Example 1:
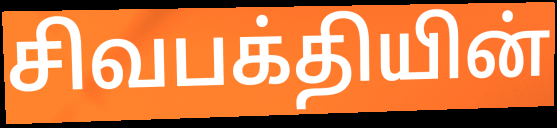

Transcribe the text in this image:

சிவபக்தியின்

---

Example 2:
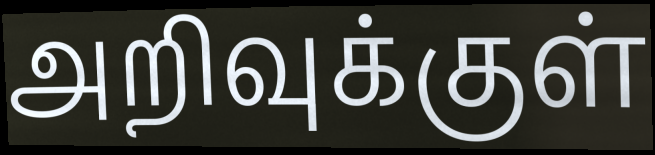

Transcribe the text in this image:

அறிவுக்குள்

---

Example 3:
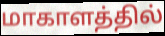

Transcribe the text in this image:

மாகாளத்தில்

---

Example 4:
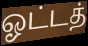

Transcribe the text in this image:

ஓட்டத்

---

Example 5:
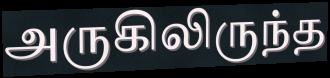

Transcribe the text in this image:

அருகிலிருந்த